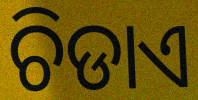
ଚିଡାଏ